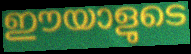
ഈയാളുടെ